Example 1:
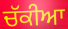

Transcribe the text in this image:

ਚੱਕੀਆ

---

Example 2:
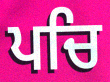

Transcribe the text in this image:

ਪਚਿ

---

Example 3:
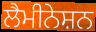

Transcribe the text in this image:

ਲੈਮੀਨੇਸ਼ਨ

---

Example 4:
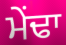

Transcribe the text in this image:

ਮੇਂਢਾ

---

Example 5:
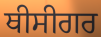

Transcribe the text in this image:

ਥੀਸੀਗਰ